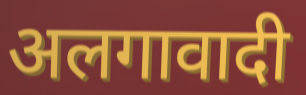
अलगावादी